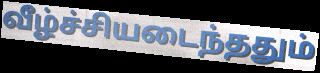
வீழ்ச்சியடைந்ததும்